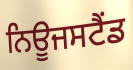
ਨਿਊਜਸਟੈਂਡ